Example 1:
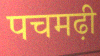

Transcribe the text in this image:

पचमढ़ी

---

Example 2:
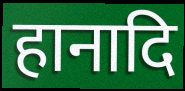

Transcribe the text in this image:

हानादि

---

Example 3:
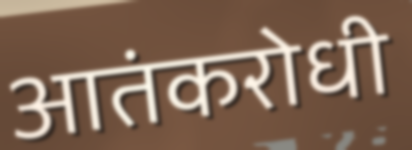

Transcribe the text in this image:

आतंकरोधी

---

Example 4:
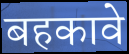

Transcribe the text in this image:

बहकावे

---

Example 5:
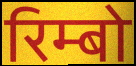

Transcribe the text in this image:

रिम्बो